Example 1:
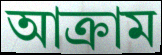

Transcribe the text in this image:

আক্ৰাম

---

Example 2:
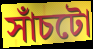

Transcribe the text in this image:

সাঁচটো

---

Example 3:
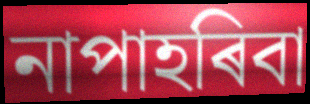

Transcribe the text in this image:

নাপাহৰিবা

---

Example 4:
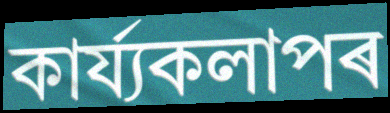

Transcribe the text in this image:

কাৰ্য্যকলাপৰ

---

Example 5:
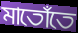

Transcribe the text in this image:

মাতোঁতে